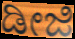
ಡೀಜಿ